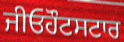
ਜੀਓਹੌਟਸਟਾਰ